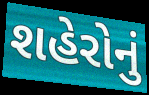
શહેરોનું